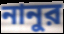
নানুর